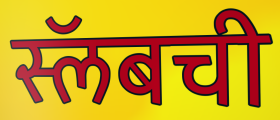
स्लॅबची